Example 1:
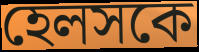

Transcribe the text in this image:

হেলসকে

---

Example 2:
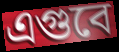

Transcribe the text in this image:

এগুবে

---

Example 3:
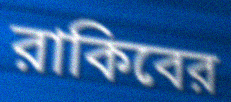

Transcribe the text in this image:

রাকিবের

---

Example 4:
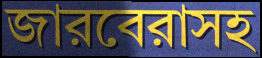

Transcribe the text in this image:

জারবেরাসহ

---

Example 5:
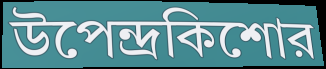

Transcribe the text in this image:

উপেন্দ্রকিশোর